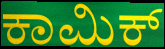
ಕಾಮಿಕ್